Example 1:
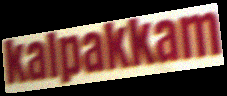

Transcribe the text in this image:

kalpakkam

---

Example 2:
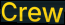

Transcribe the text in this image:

Crew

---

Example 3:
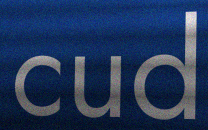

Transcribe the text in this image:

cud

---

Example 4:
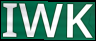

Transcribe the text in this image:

IWK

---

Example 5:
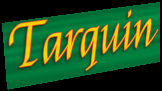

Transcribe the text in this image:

Tarquin